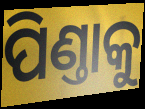
ପିଣ୍ତାକୁ